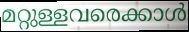
മറ്റുള്ളവരെക്കാൾ